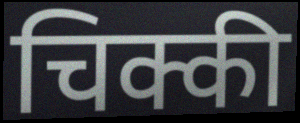
चिक्की